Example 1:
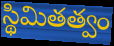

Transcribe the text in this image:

స్థిమితత్వం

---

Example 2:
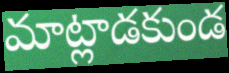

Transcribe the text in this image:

మాట్లాడకుండ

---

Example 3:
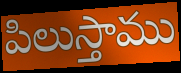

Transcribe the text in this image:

పిలుస్తాము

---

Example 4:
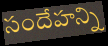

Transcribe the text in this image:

సందేహన్ని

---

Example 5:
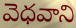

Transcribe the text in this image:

వెధవాని